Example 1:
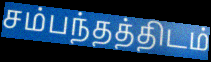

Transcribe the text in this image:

சம்பந்தத்திடம்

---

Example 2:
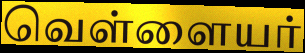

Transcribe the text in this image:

வெள்ளையர்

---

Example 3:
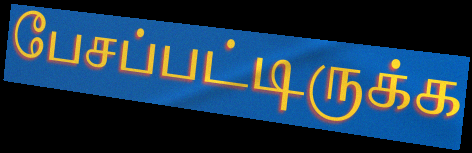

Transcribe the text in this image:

பேசப்பட்டிருக்க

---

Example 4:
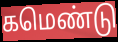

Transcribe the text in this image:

கமெண்டு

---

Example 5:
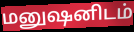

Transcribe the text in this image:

மனுஷனிடம்